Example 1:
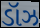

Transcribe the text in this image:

ડૉઝ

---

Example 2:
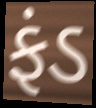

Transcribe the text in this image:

ફંડ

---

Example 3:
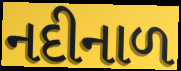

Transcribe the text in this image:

નદીનાળ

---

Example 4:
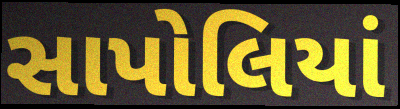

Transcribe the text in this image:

સાપોલિયાં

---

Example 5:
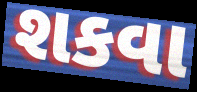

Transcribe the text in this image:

શકવા